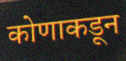
कोणाकडून